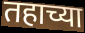
तहाच्या